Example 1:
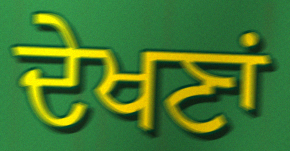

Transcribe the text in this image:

ਦੇਖਣਾਂ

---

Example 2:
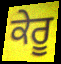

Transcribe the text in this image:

ਕੇਰੂ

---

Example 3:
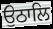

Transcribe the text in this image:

ਉਠਾਲਿ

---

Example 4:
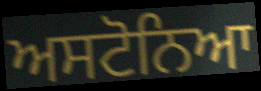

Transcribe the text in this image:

ਅਸਟੋਨਿਆ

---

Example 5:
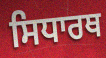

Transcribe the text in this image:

ਸਿਧਾਰਥ